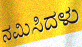
ನಮಿಸಿದಳು